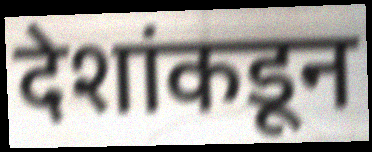
देशांकडून